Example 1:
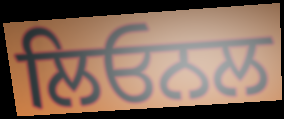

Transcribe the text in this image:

ਲਿਓਨਲ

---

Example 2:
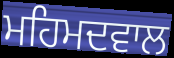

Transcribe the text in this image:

ਮਹਿਮਦਵਾਲ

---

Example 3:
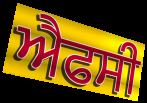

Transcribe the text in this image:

ਐਫਸੀ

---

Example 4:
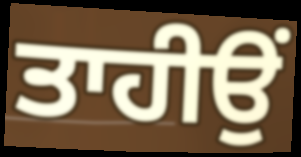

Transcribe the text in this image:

ਤਾਹੀਉਂ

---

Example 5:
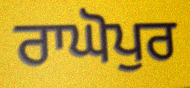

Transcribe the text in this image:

ਰਾਘੋਪੁਰ